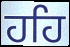
ਹਹਿ